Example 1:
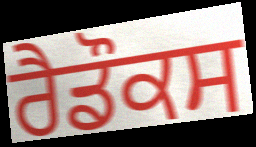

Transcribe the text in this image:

ਰੈਡੌਕਸ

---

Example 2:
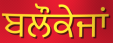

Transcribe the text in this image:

ਬਲੌਕੇਜਾਂ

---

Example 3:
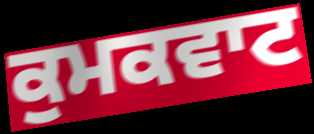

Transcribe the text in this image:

ਕੁਮਕਵਾਟ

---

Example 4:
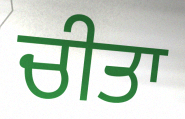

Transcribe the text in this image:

ਚੀਤਾ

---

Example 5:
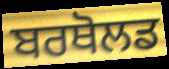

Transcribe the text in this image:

ਬਰਥੋਲਡ